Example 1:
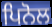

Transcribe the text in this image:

ਪਿਨੋਲ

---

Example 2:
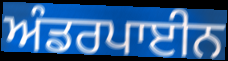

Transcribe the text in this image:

ਅੰਡਰਪਾਈਨ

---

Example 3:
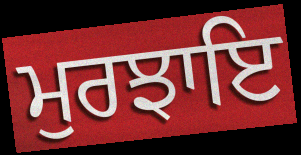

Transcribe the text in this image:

ਮੁਰਝਾਇ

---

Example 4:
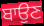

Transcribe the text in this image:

ਬਾਉਣ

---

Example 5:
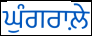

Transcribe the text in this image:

ਘੁੰਗਰਾਲ਼ੇ